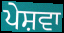
ਪੇਸ਼ਵਾ